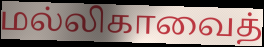
மல்லிகாவைத்